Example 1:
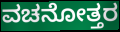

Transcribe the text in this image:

ವಚನೋತ್ತರ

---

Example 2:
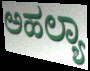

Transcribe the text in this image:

ಅಹಲ್ಯಾ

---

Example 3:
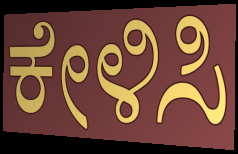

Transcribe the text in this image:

ಕೇಳಿಸಿ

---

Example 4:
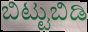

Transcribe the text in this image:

ಬಿಟ್ಟುಬಿಡಿ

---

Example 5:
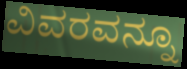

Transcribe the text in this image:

ವಿವರವನ್ನೂ